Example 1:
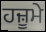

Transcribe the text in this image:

ਹਜ਼ੂਮੇ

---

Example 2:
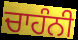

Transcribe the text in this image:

ਚਾਹੰਨੀ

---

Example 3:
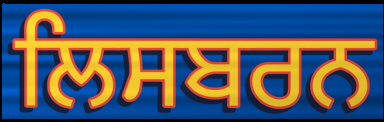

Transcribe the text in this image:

ਲਿਸਬਰਨ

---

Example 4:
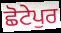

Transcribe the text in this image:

ਛੋਟੇਪੁਰ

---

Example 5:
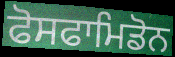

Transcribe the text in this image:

ਫੋਸਫਾਮਿਡੋਨ